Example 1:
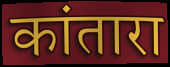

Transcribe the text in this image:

कांतारा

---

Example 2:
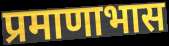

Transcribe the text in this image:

प्रमाणाभास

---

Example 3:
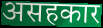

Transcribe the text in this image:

असहकार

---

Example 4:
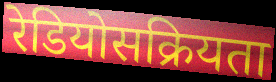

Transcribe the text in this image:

रेडियोसक्रियता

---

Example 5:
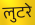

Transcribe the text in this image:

लुटरे